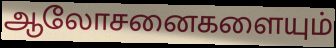
ஆலோசனைகளையும்